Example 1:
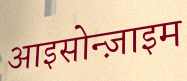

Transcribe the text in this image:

आइसोन्ज़ाइम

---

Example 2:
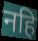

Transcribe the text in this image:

नहि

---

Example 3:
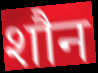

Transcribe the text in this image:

शौन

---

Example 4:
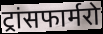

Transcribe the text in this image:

ट्रांसफार्मरो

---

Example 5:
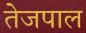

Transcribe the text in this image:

तेजपाल